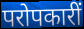
परोपकारीं